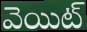
వెయిట్